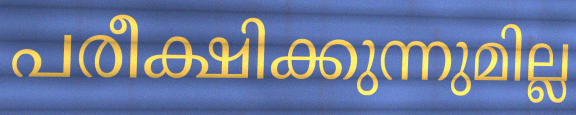
പരീക്ഷിക്കുന്നുമില്ല